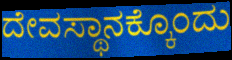
ದೇವಸ್ಥಾನಕ್ಕೊಂದು